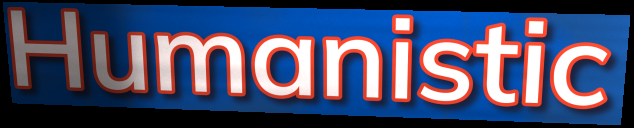
Humanistic